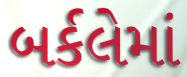
બર્કલેમાં